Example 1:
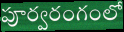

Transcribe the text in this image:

పూర్వరంగంలో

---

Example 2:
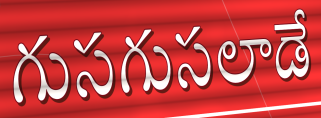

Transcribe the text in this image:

గుసగుసలాడే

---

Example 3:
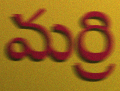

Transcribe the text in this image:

మర్రి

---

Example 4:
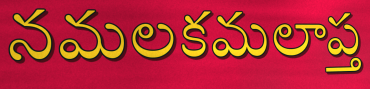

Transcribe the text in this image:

నమలకమలాప్త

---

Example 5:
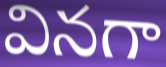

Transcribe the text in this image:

వినగా